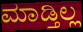
ಮಾಡ್ತಿಲ್ಲ